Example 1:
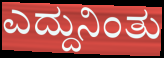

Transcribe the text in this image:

ಎದ್ದುನಿಂತು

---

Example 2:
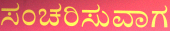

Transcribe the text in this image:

ಸಂಚರಿಸುವಾಗ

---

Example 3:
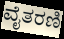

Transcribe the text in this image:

ವೈತರಣಿ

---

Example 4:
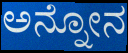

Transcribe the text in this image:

ಅನ್ನೋನ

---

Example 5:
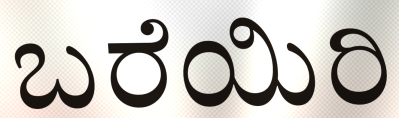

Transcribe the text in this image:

ಬರೆಯಿರಿ